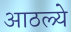
आठल्ये